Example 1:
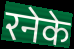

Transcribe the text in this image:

रनेके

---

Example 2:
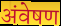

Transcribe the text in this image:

अंवेषण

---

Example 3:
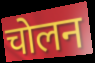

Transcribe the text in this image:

चोलन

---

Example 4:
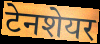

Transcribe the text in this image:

टेनशेयर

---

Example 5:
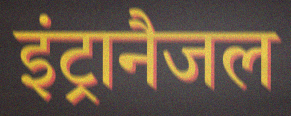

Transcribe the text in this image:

इंट्रानैजल